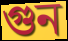
গুন